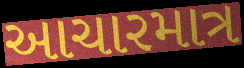
આચારમાત્ર